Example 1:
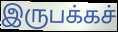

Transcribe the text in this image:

இருபக்கச்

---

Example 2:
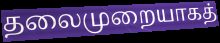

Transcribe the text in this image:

தலைமுறையாகத்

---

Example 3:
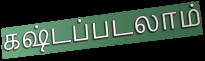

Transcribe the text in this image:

கஷ்டப்படலாம்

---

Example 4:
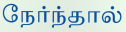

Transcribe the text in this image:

நேர்ந்தால்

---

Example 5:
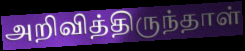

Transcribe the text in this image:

அறிவித்திருந்தாள்